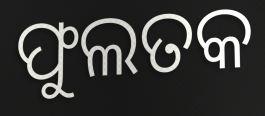
ଫୁଲତକ